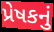
પ્રેષકનું